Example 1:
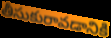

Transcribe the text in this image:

తీసుకురావడానికి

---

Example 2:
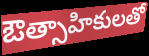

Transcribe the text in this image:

ఔత్సాహికులతో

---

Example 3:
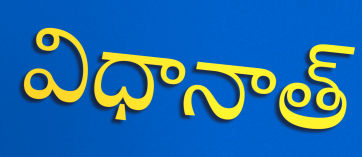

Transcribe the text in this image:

విధానాత్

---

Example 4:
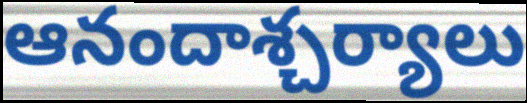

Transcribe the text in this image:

ఆనందాశ్చర్యాలు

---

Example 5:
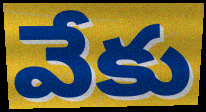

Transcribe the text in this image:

వేకు